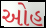
ઓહ